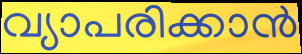
വ്യാപരിക്കാൻ